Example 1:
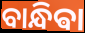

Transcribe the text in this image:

ବାନ୍ଧିଵା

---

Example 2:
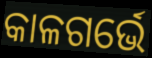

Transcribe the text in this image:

କାଳଗର୍ଭେ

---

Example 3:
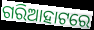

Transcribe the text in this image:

ଗରିଆହାଟରେ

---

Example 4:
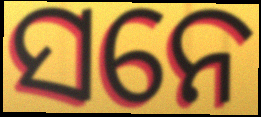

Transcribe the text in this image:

ସନେ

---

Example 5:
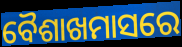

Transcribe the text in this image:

ବୈଶାଖମାସରେ